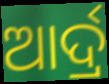
ଆର୍ଦ୍ର